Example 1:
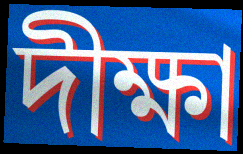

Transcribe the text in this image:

দীক্ষা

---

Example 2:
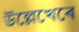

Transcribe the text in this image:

উল্লেখেৰে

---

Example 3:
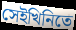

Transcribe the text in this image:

সেইখিনিতে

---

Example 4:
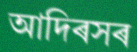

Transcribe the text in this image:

আদিৰসৰ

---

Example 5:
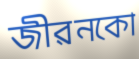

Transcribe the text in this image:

জীৱনকো